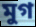
মুগ